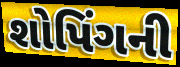
શોપિંગની